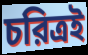
চরিত্রই